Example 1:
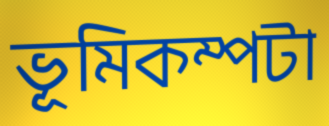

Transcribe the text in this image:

ভূমিকম্পটা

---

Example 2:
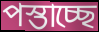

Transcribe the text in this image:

পস্তাচ্ছে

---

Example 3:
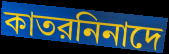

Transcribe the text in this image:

কাতরনিনাদে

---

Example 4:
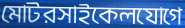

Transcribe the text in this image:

মোটরসাইকেলযোগে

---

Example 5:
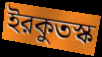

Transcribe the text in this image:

ইরকুতস্ক